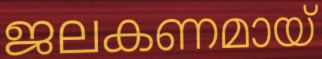
ജലകണമായ്